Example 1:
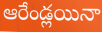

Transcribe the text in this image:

ఆరేండ్లయినా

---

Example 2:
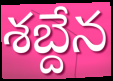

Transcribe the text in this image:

శబ్దేన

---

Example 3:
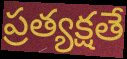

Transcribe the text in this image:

ప్రత్యక్షతే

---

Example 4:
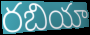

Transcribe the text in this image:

రబియా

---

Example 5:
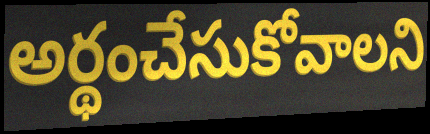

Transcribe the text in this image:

అర్థంచేసుకోవాలని